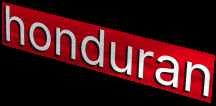
honduran